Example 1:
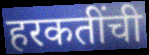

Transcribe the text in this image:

हरकतींची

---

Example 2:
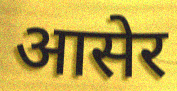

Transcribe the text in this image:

आसेर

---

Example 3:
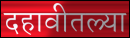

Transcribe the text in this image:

दहावीतल्या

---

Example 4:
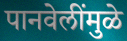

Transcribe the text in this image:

पानवेलींमुळे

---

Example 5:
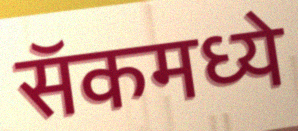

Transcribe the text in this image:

सॅकमध्ये